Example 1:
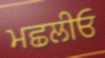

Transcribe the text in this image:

ਮਛਲੀਓ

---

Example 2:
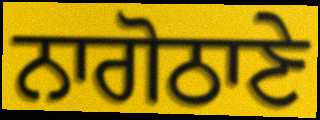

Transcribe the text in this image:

ਨਾਗੋਠਾਣੇ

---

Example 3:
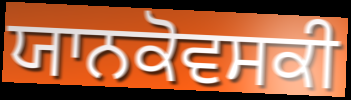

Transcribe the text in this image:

ਯਾਨਕੋਵਸਕੀ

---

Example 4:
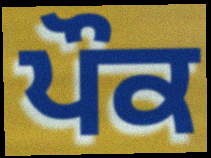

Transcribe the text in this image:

ਪੌਕ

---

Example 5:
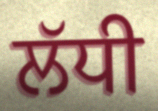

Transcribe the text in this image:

ਲੱਧੀ